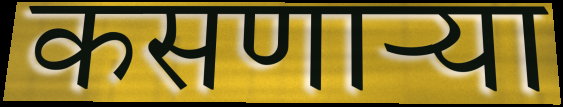
कसणाऱ्या